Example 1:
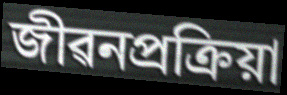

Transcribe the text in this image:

জীৱনপ্ৰক্ৰিয়া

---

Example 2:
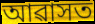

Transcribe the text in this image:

আৱাসত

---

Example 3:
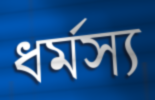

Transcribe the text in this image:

ধৰ্মস্য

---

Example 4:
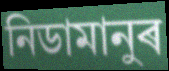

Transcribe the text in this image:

নিডামানুৰ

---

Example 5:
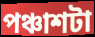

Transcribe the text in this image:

পঞ্চাশটা